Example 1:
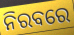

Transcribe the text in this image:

ନିରବରେ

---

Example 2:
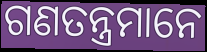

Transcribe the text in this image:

ଗଣତନ୍ତ୍ରମାନେ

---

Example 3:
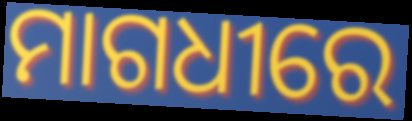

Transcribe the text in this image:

ମାଗଧୀରେ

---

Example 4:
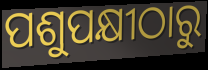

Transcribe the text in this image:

ପଶୁପକ୍ଷୀଠାରୁ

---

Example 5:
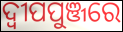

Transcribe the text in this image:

ଦ୍ୱୀପପୁଞ୍ଜରେ